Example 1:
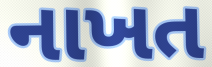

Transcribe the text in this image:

નાખત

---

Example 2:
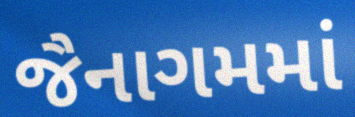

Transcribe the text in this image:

જૈનાગમમાં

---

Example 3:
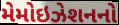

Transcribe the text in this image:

મેમોઇઝેશનનો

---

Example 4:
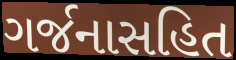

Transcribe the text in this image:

ગર્જનાસહિત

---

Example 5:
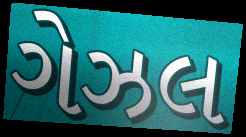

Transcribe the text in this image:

ગેઝલ